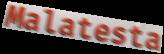
Malatesta